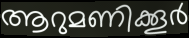
ആറുമണിക്കൂർ